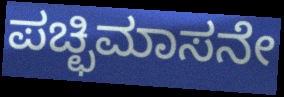
ಪಚ್ಛಿಮಾಸನೇ